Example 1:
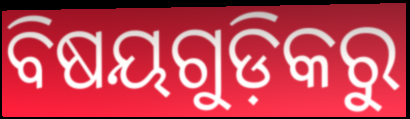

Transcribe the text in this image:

ବିଷୟଗୁଡ଼ିକରୁ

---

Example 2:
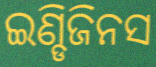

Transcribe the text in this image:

ଇଣ୍ଡିଜିନସ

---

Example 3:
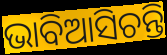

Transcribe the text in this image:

ଭାବିଆସିଚନ୍ତି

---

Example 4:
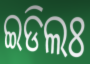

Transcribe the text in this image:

ଇଡିଲଃ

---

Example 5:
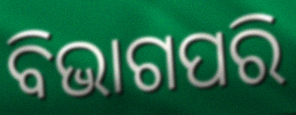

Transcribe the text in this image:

ବିଭାଗପରି